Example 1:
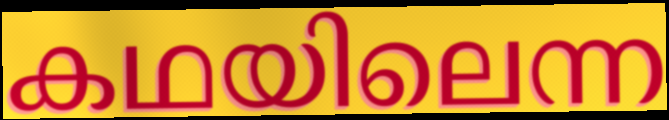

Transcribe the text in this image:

കഥയിലെന്ന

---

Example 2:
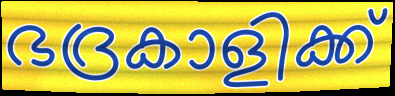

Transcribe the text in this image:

ഭദ്രകാളിക്ക്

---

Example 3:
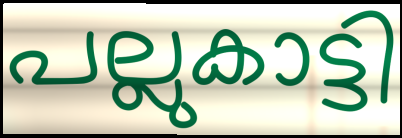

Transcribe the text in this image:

പല്ലുകാട്ടി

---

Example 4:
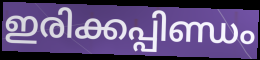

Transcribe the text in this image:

ഇരിക്കപ്പിണ്ഡം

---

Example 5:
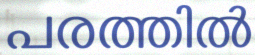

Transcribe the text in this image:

പരത്തിൽ